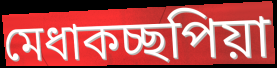
মেধাকচ্ছপিয়া